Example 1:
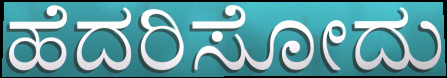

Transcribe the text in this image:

ಹೆದರಿಸೋದು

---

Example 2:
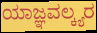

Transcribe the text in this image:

ಯಾಜ್ಞವಲ್ಕ್ಯರ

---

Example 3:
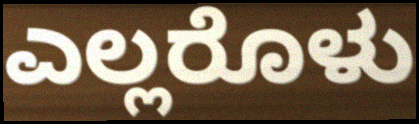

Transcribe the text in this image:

ಎಲ್ಲರೊಳು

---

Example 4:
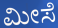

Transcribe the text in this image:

ಮೀಸೆ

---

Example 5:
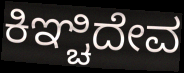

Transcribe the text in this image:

ಕಿಞ್ಚಿದೇವ